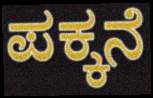
ಪಕ್ಕನೆ